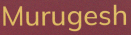
Murugesh